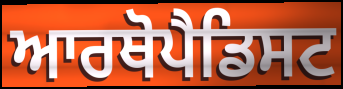
ਆਰਥੋਪੈਡਿਸਟ